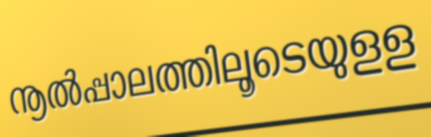
നൂൽപ്പാലത്തിലൂടെയുളള